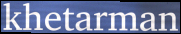
khetarman